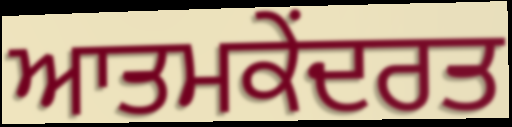
ਆਤਮਕੇਂਦਰਤ